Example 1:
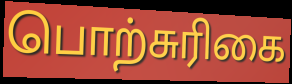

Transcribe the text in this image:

பொற்சுரிகை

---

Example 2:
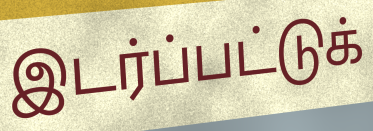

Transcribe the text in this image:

இடர்ப்பட்டுக்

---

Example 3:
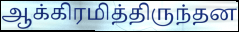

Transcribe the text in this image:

ஆக்கிரமித்திருந்தன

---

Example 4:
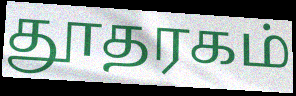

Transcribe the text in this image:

தூதரகம்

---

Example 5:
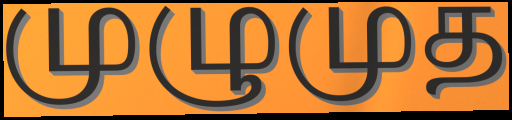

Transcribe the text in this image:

முழுமுத